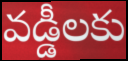
వడ్డీలకు